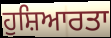
ਹੁਸ਼ਿਆਰਤਾ